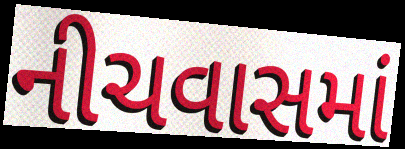
નીચવાસમાં